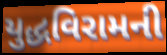
યુદ્ધવિરામની